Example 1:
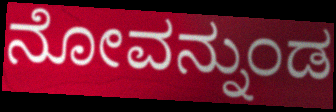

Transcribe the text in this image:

ನೋವನ್ನುಂಡ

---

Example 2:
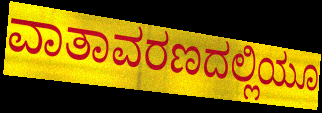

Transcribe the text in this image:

ವಾತಾವರಣದಲ್ಲಿಯೂ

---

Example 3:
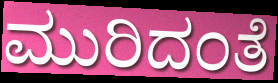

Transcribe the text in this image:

ಮುರಿದಂತೆ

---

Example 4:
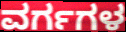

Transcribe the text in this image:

ವರ್ಗಗಳ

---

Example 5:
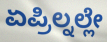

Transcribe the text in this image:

ಏಪ್ರಿಲ್ನಲ್ಲೇ